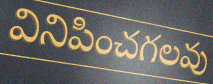
వినిపించగలవు